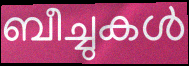
ബീച്ചുകൾ